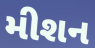
મીશન